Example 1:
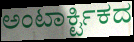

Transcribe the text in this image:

ಅಂಟಾರ್ಕ್ಟಿಕದ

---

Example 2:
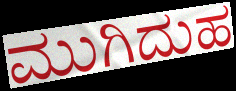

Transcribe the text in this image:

ಮುಗಿದುಹ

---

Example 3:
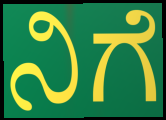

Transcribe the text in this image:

ನಿಗೆ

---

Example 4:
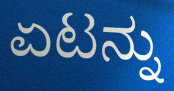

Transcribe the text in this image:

ಏಟನ್ನು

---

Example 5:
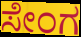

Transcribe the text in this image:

ಸೇಂಗ